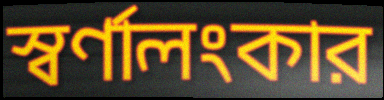
স্বর্ণালংকার